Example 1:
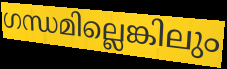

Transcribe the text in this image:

ഗന്ധമില്ലെങ്കിലും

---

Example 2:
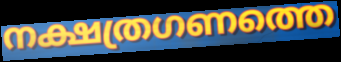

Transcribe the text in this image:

നക്ഷത്രഗണത്തെ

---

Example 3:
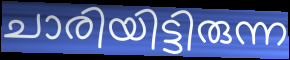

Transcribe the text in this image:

ചാരിയിട്ടിരുന്ന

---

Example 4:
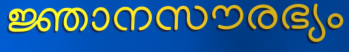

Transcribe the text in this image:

ജ്ഞാനസൗരഭ്യം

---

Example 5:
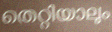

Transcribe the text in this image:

തെറ്റിയാലും